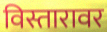
विस्तारावर